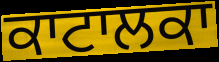
ਕਾਟਾਲਕਾ